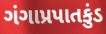
ગંગાપ્રપાતકુંડ